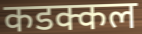
कडक्कल